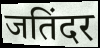
जतिंदर